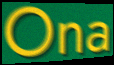
Ona